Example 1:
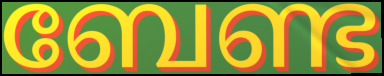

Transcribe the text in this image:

ബേണ്ട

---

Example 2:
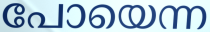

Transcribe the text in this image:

പോയെന്ന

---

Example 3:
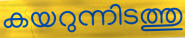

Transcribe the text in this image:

കയറുന്നിടത്തു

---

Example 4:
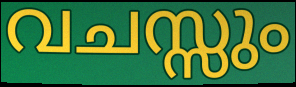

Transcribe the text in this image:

വചസ്സും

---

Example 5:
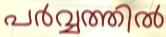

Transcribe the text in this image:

പർവ്വത്തിൽ